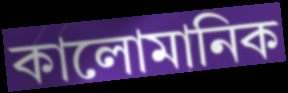
কালোমানিক